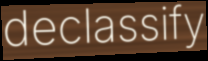
declassify